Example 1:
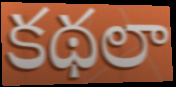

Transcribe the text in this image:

కథలా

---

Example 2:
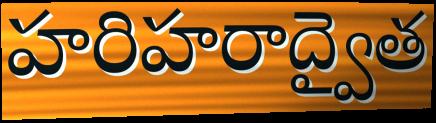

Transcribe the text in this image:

హరిహరాద్వైత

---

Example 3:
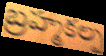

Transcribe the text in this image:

బ్రహ్మకల్ప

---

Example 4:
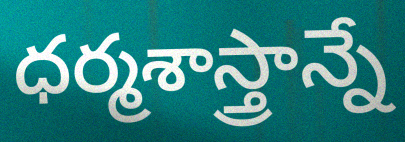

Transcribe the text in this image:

ధర్మశాస్త్రాన్నే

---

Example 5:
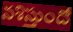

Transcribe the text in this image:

నశిస్తుందో